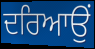
ਦਰਿਆਉਂ